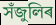
সঁজুলিৰ